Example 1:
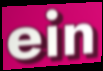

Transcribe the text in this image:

ein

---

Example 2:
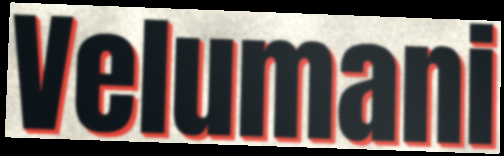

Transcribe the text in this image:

Velumani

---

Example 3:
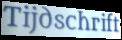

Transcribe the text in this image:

Tijdschrift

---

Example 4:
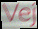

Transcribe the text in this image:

Vej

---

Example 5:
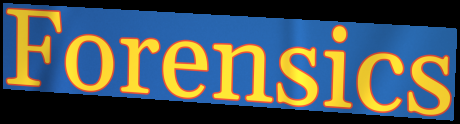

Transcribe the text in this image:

Forensics